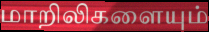
மாறிலிகளையும்